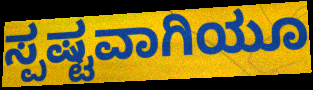
ಸ್ಪಷ್ಟವಾಗಿಯೂ